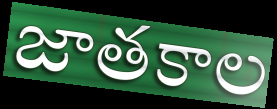
జాతకాల